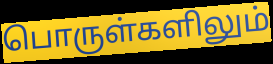
பொருள்களிலும்